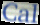
Cal